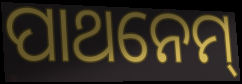
ପାଥନେମ୍